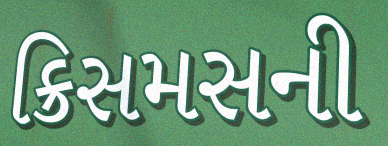
ક્રિસમસની